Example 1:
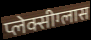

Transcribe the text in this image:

प्लेक्सीग्लास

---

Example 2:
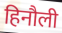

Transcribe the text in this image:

हिनौली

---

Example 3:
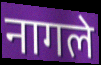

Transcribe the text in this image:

नागले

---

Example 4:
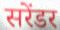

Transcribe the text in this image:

सरेंडर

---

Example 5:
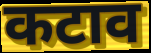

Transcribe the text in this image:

कटाव